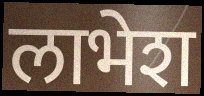
लाभेश